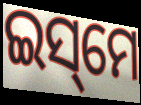
ଇସ୍‌ମେ